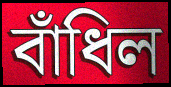
বাঁধিল